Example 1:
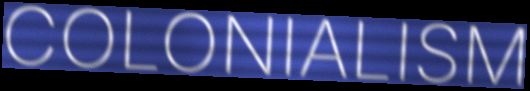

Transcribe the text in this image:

COLONIALISM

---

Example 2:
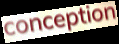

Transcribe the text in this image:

conception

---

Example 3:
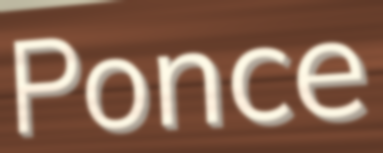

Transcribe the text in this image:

Ponce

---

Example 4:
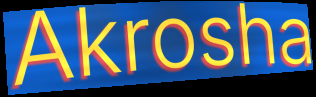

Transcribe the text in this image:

Akrosha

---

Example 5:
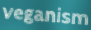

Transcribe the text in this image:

veganism